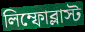
লিম্ফোব্লাস্ট